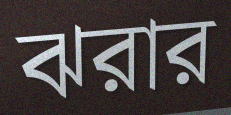
ঝরার